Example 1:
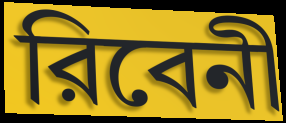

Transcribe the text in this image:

রিবেনী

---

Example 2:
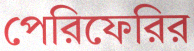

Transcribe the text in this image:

পেরিফেরির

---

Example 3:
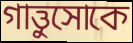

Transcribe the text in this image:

গাত্তুসোকে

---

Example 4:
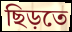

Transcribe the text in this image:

ছিড়তে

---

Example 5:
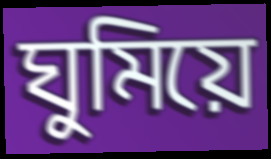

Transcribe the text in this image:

ঘুমিয়ে